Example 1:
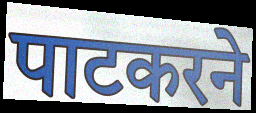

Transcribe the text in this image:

पाटकरने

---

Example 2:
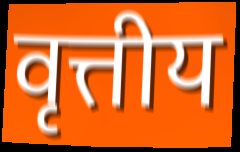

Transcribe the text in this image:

वृत्तीय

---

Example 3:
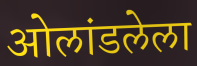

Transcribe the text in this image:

ओलांडलेला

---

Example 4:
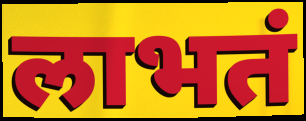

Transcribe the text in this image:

लाभतं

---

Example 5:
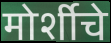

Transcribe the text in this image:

मोर्शीचे